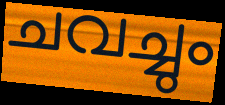
ചവച്ചും